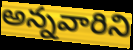
అన్నవారిని